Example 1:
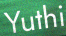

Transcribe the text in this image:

Yuthi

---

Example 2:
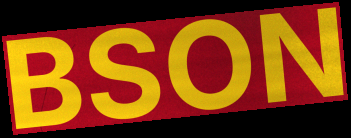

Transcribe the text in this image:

BSON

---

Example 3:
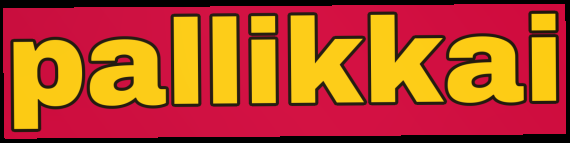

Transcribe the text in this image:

pallikkai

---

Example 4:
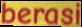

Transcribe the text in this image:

berasi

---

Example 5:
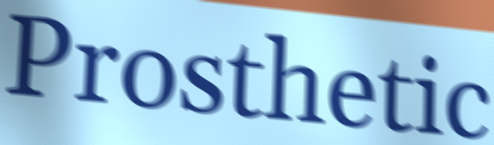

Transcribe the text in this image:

Prosthetic